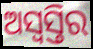
ଅସ୍ୱସ୍ତିର